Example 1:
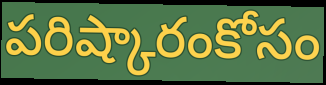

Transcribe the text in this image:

పరిష్కారంకోసం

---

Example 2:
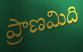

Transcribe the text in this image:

ప్రాణమిది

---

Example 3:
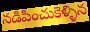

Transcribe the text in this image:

నడిపించుకెళ్ళిన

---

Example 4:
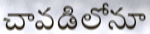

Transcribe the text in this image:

చావడిలోనూ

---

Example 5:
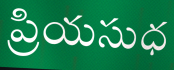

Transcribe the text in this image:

ప్రియసుధ